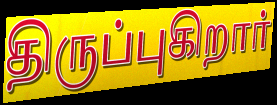
திருப்புகிறார்